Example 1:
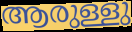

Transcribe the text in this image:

ആരുള്ളു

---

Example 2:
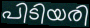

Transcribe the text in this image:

പിടിയരി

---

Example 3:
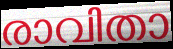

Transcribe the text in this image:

രാവിതാ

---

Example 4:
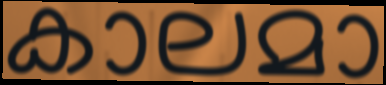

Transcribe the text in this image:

കാലമാ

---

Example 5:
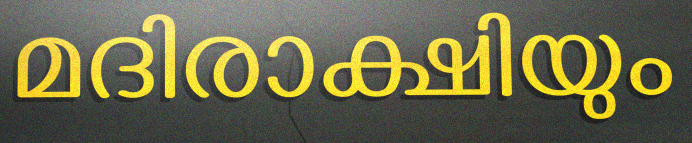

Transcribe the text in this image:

മദിരാക്ഷിയും